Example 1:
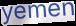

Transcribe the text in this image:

yemen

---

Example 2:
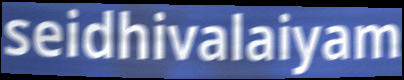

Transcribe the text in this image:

seidhivalaiyam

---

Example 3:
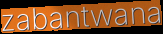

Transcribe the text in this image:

zabantwana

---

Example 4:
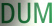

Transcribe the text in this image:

DUM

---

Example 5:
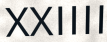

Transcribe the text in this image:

XXIIII